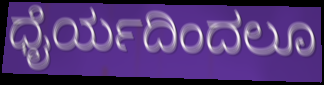
ಧೈರ್ಯದಿಂದಲೂ